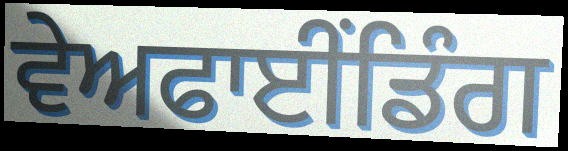
ਵੇਅਫਾਈਂਡਿੰਗ